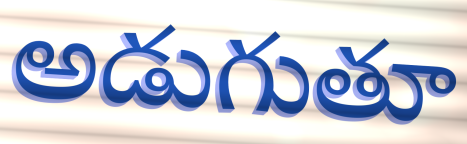
అడుగుతూ